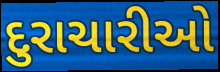
દુરાચારીઓ